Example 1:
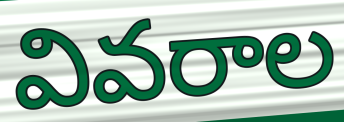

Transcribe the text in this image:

వివరాల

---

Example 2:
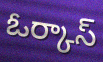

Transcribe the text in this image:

ఓర్కాస్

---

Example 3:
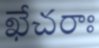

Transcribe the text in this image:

ఖేచరాః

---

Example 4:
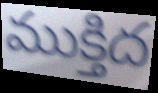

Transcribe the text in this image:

ముక్తిద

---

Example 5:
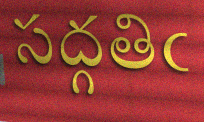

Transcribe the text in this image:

సద్గతిఁ